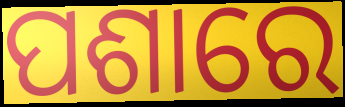
ପଶାରେ